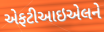
એફટીઆઇએલને